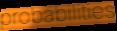
probabilities